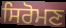
ਸਿਰੋਮਣ